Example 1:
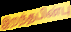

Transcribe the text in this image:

இறந்தபின்பு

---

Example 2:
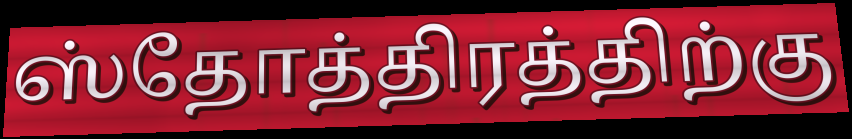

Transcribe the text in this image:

ஸ்தோத்திரத்திற்கு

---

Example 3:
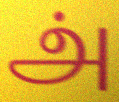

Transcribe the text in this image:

அ்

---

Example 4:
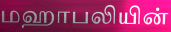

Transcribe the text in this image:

மஹாபலியின்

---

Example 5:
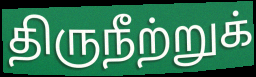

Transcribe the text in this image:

திருநீற்றுக்